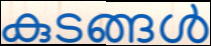
കുടങ്ങൾ